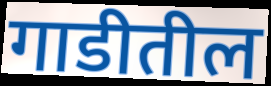
गाडीतील